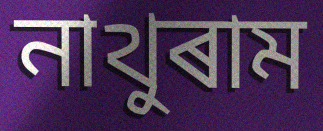
নাথুৰাম